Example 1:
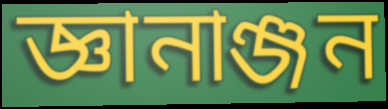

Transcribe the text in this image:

জ্ঞানাঞ্জন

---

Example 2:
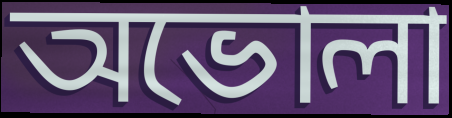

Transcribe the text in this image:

অভোলা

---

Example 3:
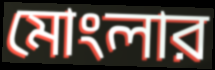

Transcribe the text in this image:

মোংলার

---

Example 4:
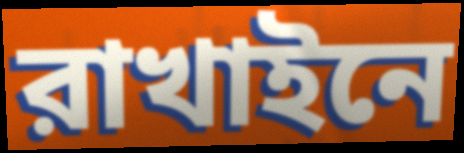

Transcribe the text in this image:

রাখাইনে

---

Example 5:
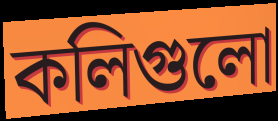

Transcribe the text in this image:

কলিগুলো